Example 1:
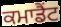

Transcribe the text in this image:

ਕਮਾਡੈਂਟ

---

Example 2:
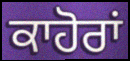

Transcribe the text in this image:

ਕਾਹੋਰਾਂ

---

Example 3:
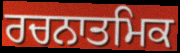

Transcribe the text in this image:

ਰਚਨਾਤਮਿਕ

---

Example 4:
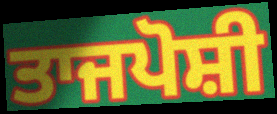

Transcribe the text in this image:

ਤਾਜਪੋਸ਼ੀ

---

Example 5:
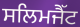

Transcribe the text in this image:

ਸਲਿਮਜੈੱਟ